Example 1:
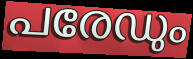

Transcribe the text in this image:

പരേഡും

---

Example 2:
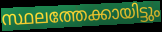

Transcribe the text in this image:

സ്ഥലത്തേക്കായിട്ടും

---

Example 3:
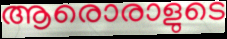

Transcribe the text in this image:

ആരൊരാളുടെ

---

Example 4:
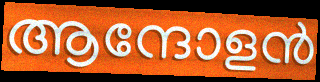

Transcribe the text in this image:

ആന്ദോളൻ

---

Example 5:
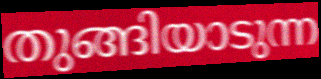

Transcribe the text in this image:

തുങ്ങിയാടുന്ന